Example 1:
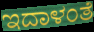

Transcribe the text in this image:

ಇದಾಳಂತೆ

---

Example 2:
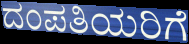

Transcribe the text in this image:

ದಂಪತಿಯರಿಗೆ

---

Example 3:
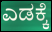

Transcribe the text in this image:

ಎಡಕ್ಕೆ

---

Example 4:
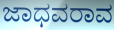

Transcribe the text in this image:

ಜಾಧವರಾವ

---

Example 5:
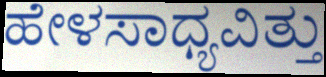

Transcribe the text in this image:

ಹೇಳಸಾಧ್ಯವಿತ್ತು